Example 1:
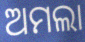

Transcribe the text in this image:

ଅମଲା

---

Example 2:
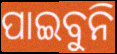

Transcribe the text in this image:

ପାଇବୁନି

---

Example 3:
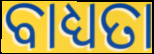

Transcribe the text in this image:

ବାଧ୍ୟତା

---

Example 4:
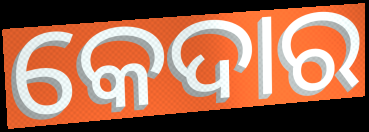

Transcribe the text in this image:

କେଦାର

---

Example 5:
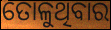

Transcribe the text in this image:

ତୋଳୁଥିବାର